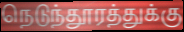
நெடுந்தூரத்துக்கு